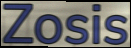
Zosis